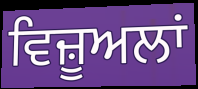
ਵਿਜ਼ੂਅਲਾਂ